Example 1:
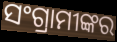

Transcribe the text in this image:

ସଂଗ୍ରାମୀଙ୍କର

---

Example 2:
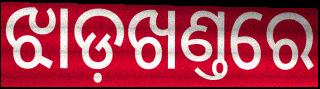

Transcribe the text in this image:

ଝାଡ଼ଖଣ୍ତରେ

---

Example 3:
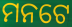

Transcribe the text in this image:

ମନଟେ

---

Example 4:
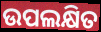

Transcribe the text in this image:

ଉପଲକ୍ଷିତ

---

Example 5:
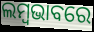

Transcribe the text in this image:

ଲମ୍ବଭାବରେ